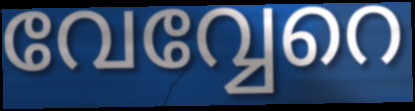
വേവ്വേറെ